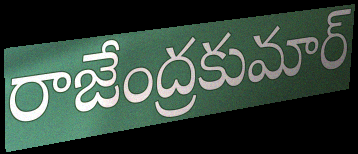
రాజేంద్రకుమార్